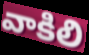
వాకిలి